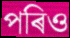
পৰিও